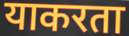
याकरता